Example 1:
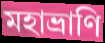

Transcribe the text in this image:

মহাভ্রাণি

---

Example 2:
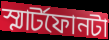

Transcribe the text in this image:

স্মার্টফোনটা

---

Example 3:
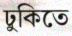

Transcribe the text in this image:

ঢুকিতে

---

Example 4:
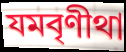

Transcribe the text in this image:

যমবৃণীথা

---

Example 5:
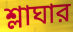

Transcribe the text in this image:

শ্লাঘার